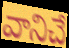
వానిచే